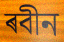
ৰবীন